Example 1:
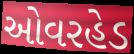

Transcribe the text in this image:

ઓવરહેડ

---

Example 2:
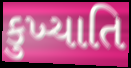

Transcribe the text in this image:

કુખ્યાતિ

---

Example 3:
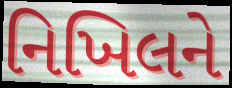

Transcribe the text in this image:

નિખિલને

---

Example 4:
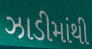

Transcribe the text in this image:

ઝાડીમાંથી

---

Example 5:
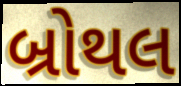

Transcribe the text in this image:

બ્રોથલ